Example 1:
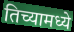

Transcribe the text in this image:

तिच्यामध्ये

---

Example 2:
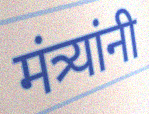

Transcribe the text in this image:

मंत्र्यांनी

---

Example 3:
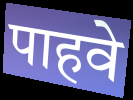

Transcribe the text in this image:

पाहवे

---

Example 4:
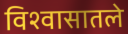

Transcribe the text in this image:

विश्वासातले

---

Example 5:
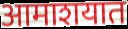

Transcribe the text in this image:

आमाशयात